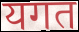
यगत